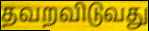
தவறவிடுவது